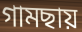
গামছায়